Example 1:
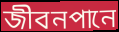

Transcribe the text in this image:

জীবনপানে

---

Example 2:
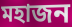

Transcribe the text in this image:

মহাজন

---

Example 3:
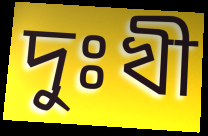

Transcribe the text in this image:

দুঃখী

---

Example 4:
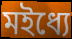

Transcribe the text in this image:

মইধ্যে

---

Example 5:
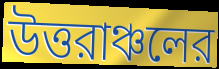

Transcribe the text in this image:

উত্তরাঞ্চলের